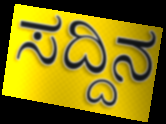
ಸದ್ದಿನ